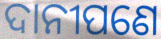
ଦାନୀପଣେ